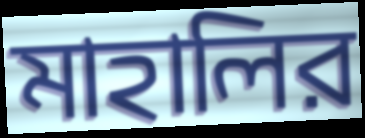
মাহালির